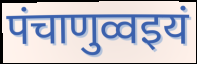
पंचाणुव्वइयं